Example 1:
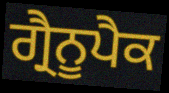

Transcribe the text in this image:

ਗ੍ਰੈਨੂਪੈਕ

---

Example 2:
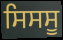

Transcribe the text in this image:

ਸਿਸਸੂ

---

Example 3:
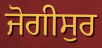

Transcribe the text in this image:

ਜੋਗੀਸੁਰ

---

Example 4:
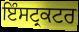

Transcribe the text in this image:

ਇੰਸਟ੍ਰਕਟਰ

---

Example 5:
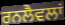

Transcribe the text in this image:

ਰਨਲੈਵਲਾਂ